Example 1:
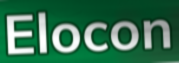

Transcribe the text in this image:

Elocon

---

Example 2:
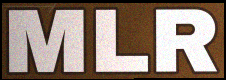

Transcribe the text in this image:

MLR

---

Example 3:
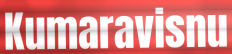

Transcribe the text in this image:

Kumaravisnu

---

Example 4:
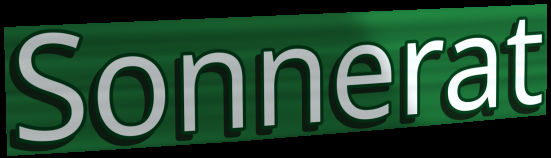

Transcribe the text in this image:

Sonnerat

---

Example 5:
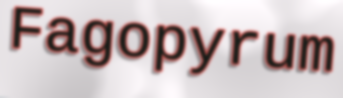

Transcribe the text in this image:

Fagopyrum